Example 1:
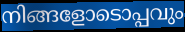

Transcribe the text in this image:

നിങ്ങളോടൊപ്പവും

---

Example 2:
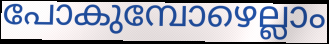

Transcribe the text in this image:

പോകുമ്പോഴെല്ലാം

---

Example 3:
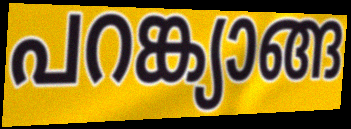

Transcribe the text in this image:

പറങ്ക്യാങ്ങ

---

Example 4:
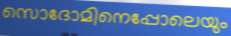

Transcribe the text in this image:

സൊദോമിനെപ്പോലെയും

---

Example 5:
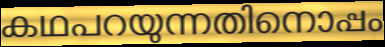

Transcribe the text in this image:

കഥപറയുന്നതിനൊപ്പം